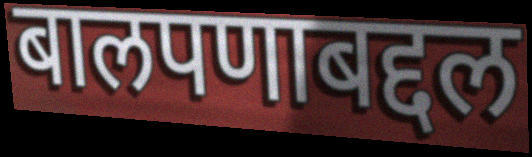
बालपणाबद्दल